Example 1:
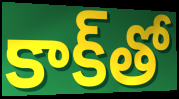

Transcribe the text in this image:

కాక్‌తో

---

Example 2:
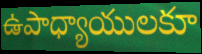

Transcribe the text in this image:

ఉపాధ్యాయులకూ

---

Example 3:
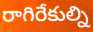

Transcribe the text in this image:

రాగిరేకుల్ని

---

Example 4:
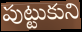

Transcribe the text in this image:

పుట్టుకుని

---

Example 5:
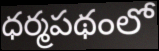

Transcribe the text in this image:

ధర్మపథంలో